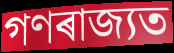
গণৰাজ্যত